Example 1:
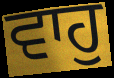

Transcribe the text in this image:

ਵਾਹੁ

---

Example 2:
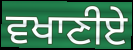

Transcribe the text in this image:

ਵਖਾਣੀਏ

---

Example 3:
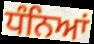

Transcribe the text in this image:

ਧੰਨਿਆਂ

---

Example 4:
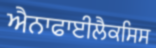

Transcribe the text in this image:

ਐਨਾਫਾਈਲੈਕਸਿਸ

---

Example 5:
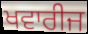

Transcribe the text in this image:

ਖਵਾਰੀਜ